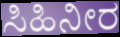
ಸಿಹಿನೀರ